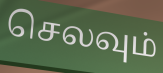
செலவும்